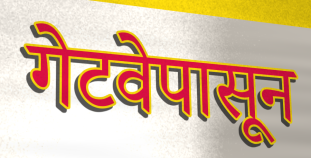
गेटवेपासून